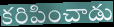
కరిపించాడు